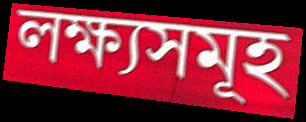
লক্ষ্যসমূহ